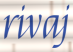
rivaj